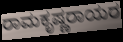
ರಾಮಕೃಷ್ಣರಾಯರ